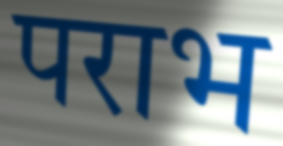
पराभ